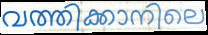
വത്തിക്കാനിലെ